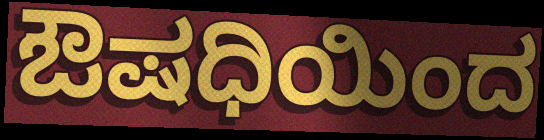
ಔಷಧಿಯಿಂದ